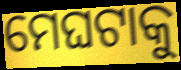
ମେଘଟାକୁ